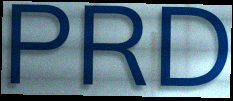
PRD